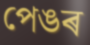
পেঙৰ